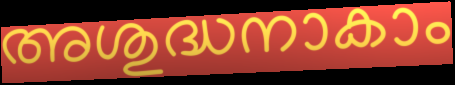
അശുദ്ധനാകാം